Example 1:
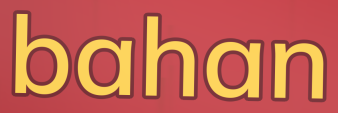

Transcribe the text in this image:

bahan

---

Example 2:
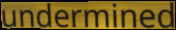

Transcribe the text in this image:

undermined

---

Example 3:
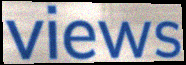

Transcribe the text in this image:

views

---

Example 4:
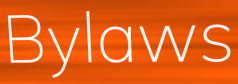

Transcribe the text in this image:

Bylaws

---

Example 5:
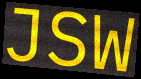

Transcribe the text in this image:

JSW